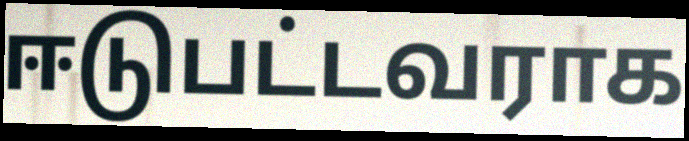
ஈடுபட்டவராக